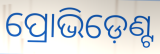
ପ୍ରୋଭିଡ଼େଣ୍ଟ